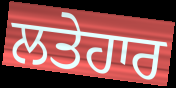
ਲਤੇਹਾਰ